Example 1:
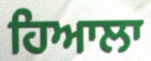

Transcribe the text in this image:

ਹਿਆਲਾ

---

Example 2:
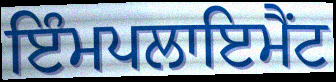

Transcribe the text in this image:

ਇੰਮਪਲਾਇਮੈਂਟ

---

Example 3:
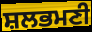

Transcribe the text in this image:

ਸ਼ਲਭਮਣੀ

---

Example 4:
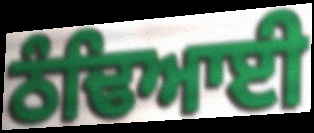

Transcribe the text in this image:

ਠੰਢਿਆਈ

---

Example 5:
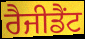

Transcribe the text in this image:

ਰੈਜੀਡੈਂਟ